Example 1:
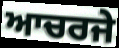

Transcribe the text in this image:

ਆਚਰਜੇ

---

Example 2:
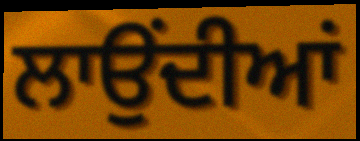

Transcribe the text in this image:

ਲਾਉਂਦੀਆਂ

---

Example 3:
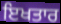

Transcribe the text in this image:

ਇਖਤਾਰ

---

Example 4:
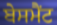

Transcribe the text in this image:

ਬੇਸਮੈਂਟ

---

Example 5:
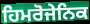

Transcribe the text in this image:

ਹਿਮਰੋਜੇਨਿਕ